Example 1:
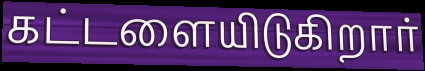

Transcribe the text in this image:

கட்டளையிடுகிறார்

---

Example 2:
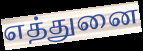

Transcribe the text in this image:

எத்துனை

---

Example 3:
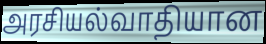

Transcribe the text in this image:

அரசியல்வாதியான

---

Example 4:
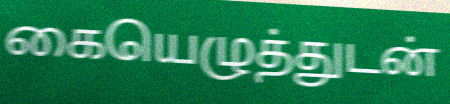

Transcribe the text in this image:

கையெழுத்துடன்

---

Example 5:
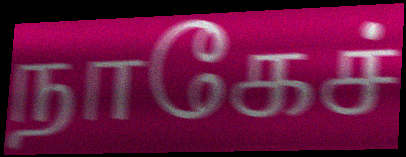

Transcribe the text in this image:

நாகேச்